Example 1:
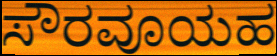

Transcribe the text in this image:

ಸೌರವೂಯಹ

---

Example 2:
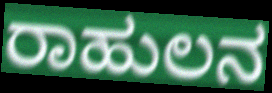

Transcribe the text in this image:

ರಾಹುಲನ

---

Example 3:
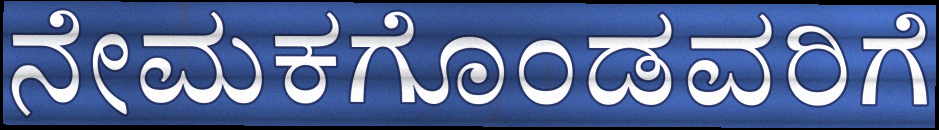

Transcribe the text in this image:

ನೇಮಕಗೊಂಡವರಿಗೆ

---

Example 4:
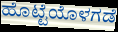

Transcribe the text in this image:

ಹೊಟ್ಟೆಯೊಳಗಡೆ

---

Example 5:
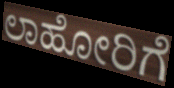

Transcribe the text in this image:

ಲಾಹೋರಿಗೆ